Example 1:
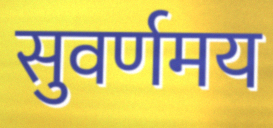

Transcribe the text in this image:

सुवर्णमय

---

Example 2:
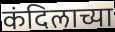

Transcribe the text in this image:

कंदिलाच्या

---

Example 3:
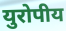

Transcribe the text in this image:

युरोपीय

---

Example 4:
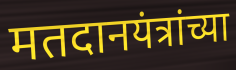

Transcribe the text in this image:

मतदानयंत्रांच्या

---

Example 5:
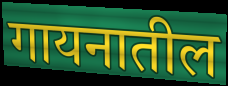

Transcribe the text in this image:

गायनातील